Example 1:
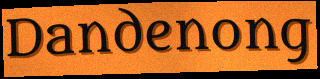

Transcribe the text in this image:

Dandenong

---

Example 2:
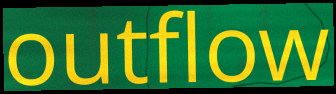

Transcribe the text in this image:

outflow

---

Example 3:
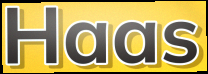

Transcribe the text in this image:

Haas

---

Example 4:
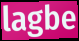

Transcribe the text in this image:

lagbe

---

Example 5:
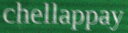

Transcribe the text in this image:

chellappay